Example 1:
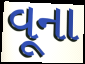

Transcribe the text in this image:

વૂના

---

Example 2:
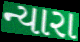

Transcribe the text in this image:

ન્યારા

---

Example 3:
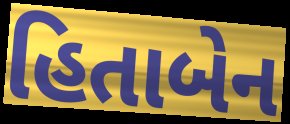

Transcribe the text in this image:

હિતાબેન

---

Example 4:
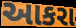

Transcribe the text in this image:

આકરા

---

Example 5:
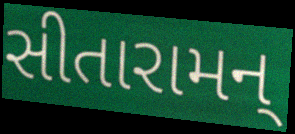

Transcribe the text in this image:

સીતારામન્